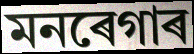
মনৰেগাৰ